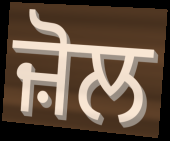
ਜ਼ੋਲ